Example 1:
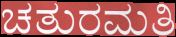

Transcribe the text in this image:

ಚತುರಮತಿ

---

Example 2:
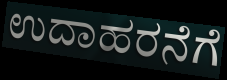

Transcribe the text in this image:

ಉದಾಹರನೆಗೆ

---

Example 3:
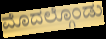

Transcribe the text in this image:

ಮೊದಲ್ಗೊಂಡು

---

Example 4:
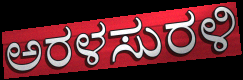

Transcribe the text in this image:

ಅರಳಸುರಳಿ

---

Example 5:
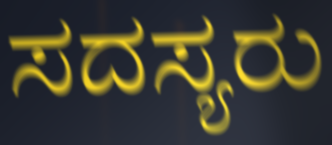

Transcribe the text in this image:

ಸದಸ್ಯರು